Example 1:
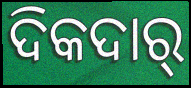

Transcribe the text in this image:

ଦିକଦାର୍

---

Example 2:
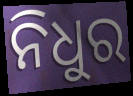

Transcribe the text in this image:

ନିଧୁର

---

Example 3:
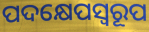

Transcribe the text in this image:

ପଦକ୍ଷେପସ୍ଵରୂପ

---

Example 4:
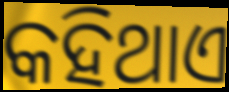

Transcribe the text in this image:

କହିଥାଏ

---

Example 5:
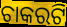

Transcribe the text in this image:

ଚାକରଟି